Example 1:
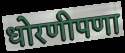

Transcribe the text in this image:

धोरणीपणा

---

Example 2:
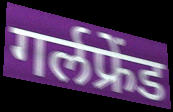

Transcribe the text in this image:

गर्लफ्रेंड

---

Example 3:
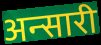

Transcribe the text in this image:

अन्सारी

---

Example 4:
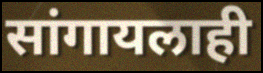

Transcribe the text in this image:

सांगायलाही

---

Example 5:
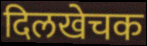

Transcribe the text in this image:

दिलखेचक